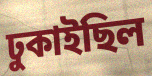
ঢুকাইছিল